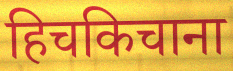
हिचकिचाना